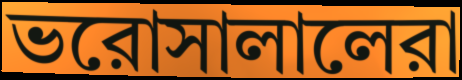
ভরোসালালেরা